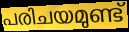
പരിചയമുണ്ട്